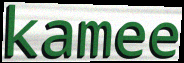
kamee